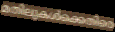
മതിലുകൾക്കെതിരെ